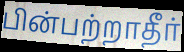
பின்பற்றாதீர்